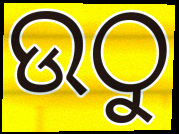
ଉଠୁ